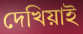
দেখিয়াই